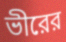
ভীরের